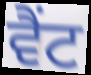
ਵੈਂਟ